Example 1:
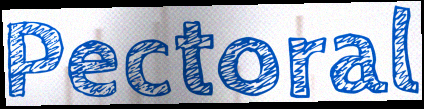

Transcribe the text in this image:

Pectoral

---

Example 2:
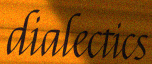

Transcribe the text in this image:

dialectics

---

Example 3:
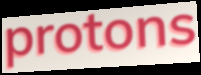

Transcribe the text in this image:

protons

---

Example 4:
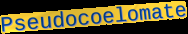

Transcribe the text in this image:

Pseudocoelomate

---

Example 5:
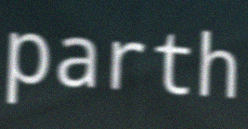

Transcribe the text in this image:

parth